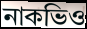
নাকভিও